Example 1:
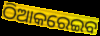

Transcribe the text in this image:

ଠିଆକରେଇବ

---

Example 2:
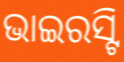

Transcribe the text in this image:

ଭାଇରସ୍ଟି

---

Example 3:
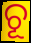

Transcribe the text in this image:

ଚୂ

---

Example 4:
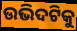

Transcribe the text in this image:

ଉଭିଦଟିକୁ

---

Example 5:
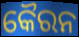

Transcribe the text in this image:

କୈରନ